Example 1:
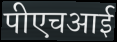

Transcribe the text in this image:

पीएचआई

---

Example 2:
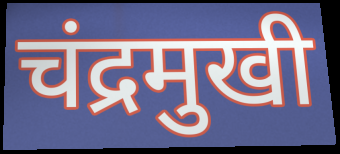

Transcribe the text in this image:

चंद्रमुखी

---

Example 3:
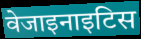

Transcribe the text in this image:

वेजाइनाइटिस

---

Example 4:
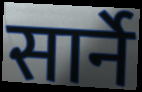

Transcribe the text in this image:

सार्ने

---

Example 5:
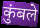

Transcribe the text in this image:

कुंबले